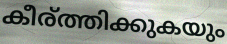
കീര്ത്തിക്കുകയും